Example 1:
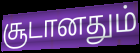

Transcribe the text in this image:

சூடானதும்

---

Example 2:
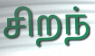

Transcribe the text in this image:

சிறந்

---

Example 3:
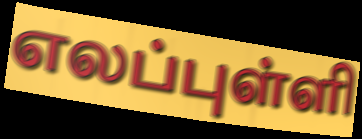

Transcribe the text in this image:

எலப்புள்ளி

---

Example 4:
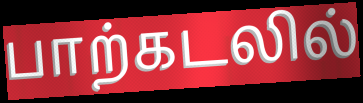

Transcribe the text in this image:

பாற்கடலில்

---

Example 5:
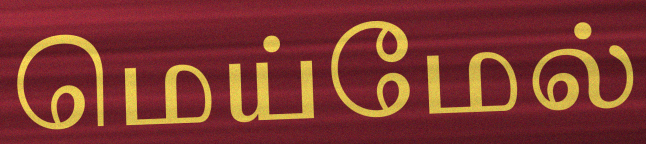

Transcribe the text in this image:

மெய்மேல்